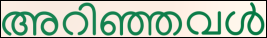
അറിഞ്ഞവൾ